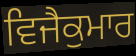
ਵਿਜੈਕੁਮਾਰ